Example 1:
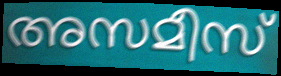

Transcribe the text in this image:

അസമീസ്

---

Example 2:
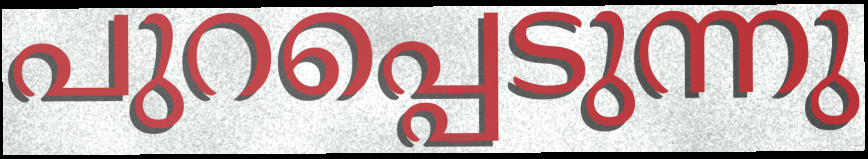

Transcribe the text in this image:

പുറപ്പെടുന്നു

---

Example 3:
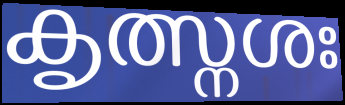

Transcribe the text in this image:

കൃത്സ്നശഃ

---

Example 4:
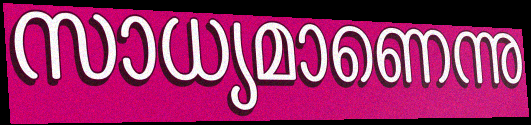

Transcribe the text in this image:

സാധ്യമാണെന്നു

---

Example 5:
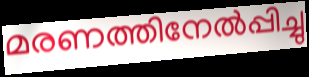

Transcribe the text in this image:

മരണത്തിനേൽപ്പിച്ചു